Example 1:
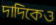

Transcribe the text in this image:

দাদিকেও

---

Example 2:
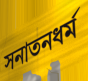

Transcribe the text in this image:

সনাতনধর্ম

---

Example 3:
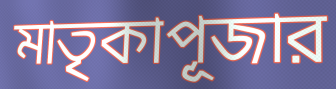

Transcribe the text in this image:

মাতৃকাপূজার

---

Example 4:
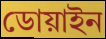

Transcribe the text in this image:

ডোয়াইন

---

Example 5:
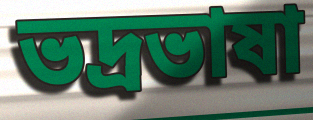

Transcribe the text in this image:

ভদ্রভাষা